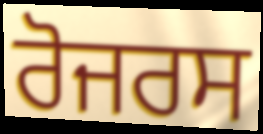
ਰੋਜਰਸ